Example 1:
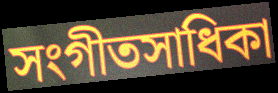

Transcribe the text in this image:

সংগীতসাধিকা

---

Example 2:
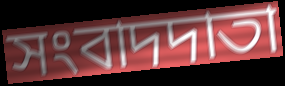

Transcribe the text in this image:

সংবাদদাতা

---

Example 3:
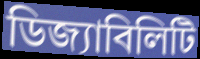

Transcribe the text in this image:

ডিজ্যাবিলিটি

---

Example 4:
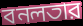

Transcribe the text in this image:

বনলতার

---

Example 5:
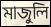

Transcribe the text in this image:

মাজুলি